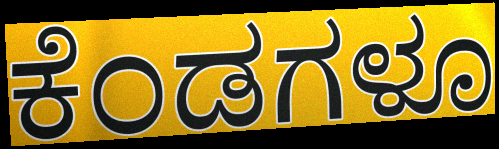
ಕೆಂಡಗಳೂ